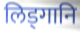
लिड्गानि